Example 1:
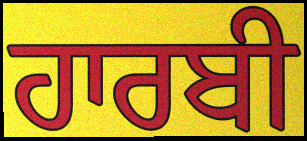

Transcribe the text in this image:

ਹਾਰਬੀ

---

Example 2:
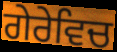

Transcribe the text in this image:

ਗੇਰੇਵਿਚ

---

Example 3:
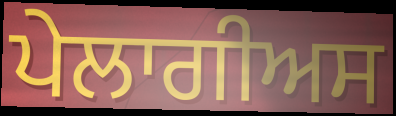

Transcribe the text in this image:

ਪੇਲਾਗੀਅਸ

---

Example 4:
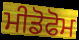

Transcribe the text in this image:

ਮੀਡੋਫੋਮ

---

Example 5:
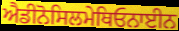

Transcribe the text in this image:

ਐਡੀਨੋਸਿਲਮੇਥਿਓਨਾਈਨ